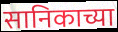
सानिकाच्या